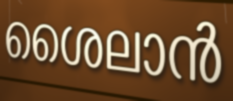
ശൈലാൻ